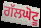
ਗੱਲਘੋਟੂ